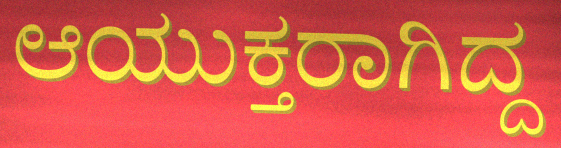
ಆಯುಕ್ತರಾಗಿದ್ದ